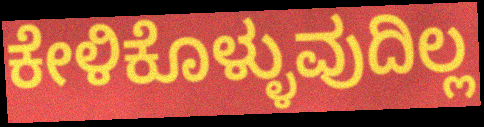
ಕೇಳಿಕೊಳ್ಳುವುದಿಲ್ಲ